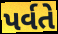
પર્વતે